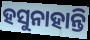
ହସୁନାହାନ୍ତି